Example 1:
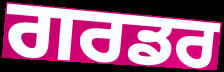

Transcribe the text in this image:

ਗਰਡਰ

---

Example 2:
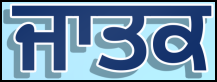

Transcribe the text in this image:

ਜਾਤਕ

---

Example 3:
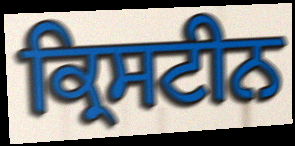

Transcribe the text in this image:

ਕ੍ਰਿਸਟੀਨ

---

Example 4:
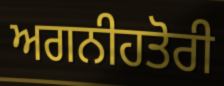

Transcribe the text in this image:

ਅਗਨੀਹਤੋਰੀ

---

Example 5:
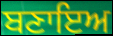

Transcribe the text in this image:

ਬਣਾਇਅ